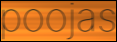
poojas